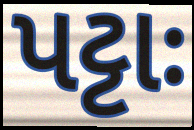
પટ્ટાઃ